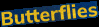
Butterflies